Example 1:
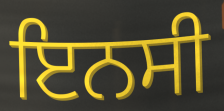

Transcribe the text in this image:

ਇਨਸੀ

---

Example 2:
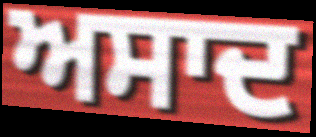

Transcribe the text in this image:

ਅਸਾਦ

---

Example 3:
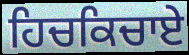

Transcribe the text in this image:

ਹਿਚਕਿਚਾਏ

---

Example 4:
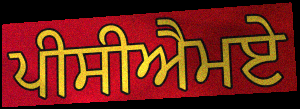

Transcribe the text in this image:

ਪੀਸੀਐਮਏ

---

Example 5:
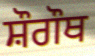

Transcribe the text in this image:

ਸ਼ੌਗੌਥ